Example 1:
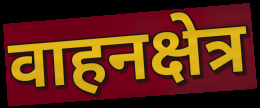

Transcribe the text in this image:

वाहनक्षेत्र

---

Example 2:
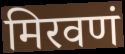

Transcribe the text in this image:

मिरवणं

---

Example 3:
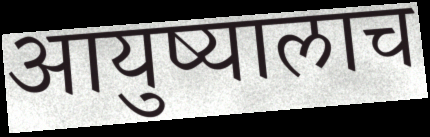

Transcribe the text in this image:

आयुष्यालाच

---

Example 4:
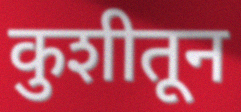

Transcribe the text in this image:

कुशीतून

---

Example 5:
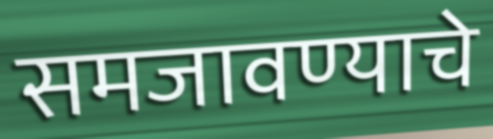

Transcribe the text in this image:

समजावण्याचे